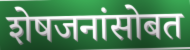
शेषजनांसोबत